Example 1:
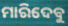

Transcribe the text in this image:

ମାରିଦେବୁ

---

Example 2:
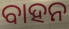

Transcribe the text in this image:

ବାହନ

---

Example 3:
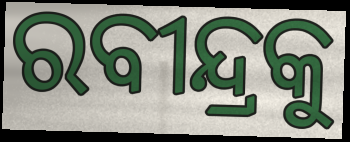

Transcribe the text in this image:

ରବୀନ୍ଦ୍ରକୁ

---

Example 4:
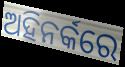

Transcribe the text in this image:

ଅହିନର୍କରେ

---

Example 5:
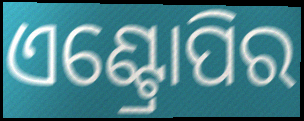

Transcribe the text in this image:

ଏଣ୍ଟ୍ରୋପିର